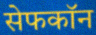
सेफकॉन